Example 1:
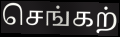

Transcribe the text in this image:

செங்கற்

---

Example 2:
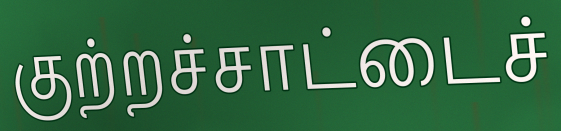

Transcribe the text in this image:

குற்றச்சாட்டைச்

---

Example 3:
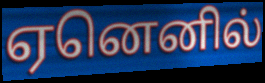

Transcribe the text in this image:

ஏனெனில்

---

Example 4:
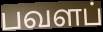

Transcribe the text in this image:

பவளப்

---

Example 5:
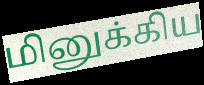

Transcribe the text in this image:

மினுக்கிய